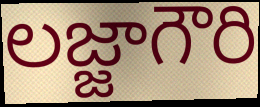
లజ్జాగౌరి